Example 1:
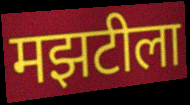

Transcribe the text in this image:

मझटीला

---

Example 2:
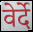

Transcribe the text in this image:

वेर्दे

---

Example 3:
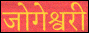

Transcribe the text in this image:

जोगेश्वरी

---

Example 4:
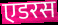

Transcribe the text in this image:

एडरस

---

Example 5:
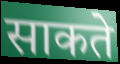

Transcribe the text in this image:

साकते